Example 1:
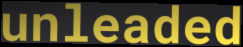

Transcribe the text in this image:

unleaded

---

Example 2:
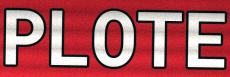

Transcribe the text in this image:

PLOTE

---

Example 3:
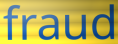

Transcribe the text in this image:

fraud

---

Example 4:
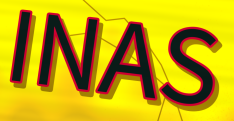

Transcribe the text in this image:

INAS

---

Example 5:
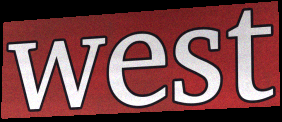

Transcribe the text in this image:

west